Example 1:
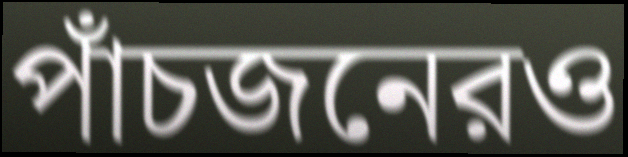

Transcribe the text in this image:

পাঁচজনেরও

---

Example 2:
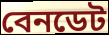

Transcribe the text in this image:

বেনডেট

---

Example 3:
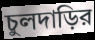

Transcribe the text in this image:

চুলদাড়ির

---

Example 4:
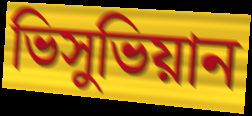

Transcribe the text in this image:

ভিসুভিয়ান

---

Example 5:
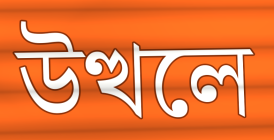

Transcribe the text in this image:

উত্থলে